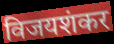
विजयशंकर